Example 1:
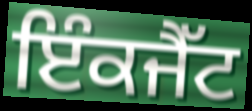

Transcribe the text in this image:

ਇੰਕਜੈੱਟ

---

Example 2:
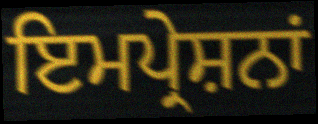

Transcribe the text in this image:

ਇਮਪ੍ਰੇਸ਼ਨਾਂ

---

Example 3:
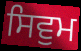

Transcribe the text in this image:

ਸਿਵੁਮ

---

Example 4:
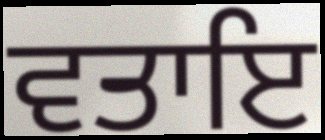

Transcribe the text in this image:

ਵਤਾਇ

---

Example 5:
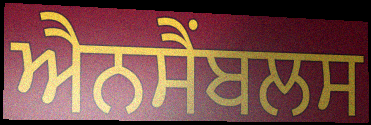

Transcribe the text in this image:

ਐਨਸੈਂਬਲਸ